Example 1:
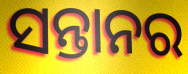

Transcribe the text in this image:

ସନ୍ତାନର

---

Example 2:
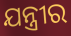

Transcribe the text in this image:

ଯନ୍ତ୍ରୀର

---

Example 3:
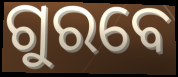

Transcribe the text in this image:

ଗୁରବେ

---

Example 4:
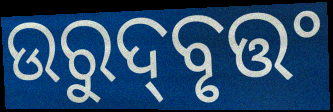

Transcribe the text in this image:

ଉରୁଦ୍‌ବୃତ୍ତଂ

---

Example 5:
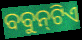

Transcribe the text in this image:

ବବୁନ୍‍ଟିଏ